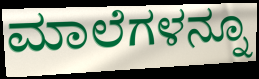
ಮಾಲೆಗಳನ್ನೂ